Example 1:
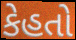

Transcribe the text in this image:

કેહતો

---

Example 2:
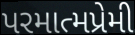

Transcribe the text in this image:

પરમાત્મપ્રેમી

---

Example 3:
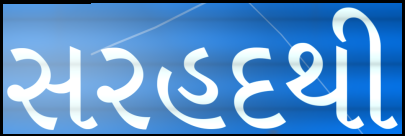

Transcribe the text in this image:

સરહદથી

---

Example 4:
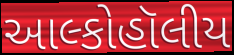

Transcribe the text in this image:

આલ્કોહૉલીય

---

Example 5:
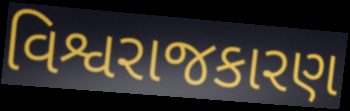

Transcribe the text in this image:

વિશ્વરાજકારણ